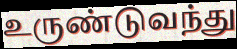
உருண்டுவந்து